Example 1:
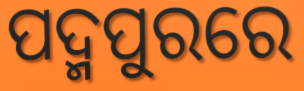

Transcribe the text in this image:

ପଦ୍ମପୁରରେ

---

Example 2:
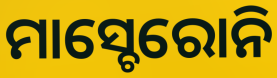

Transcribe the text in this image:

ମାସ୍ଚେରୋନି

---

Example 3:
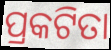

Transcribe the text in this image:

ପ୍ରକଟିତା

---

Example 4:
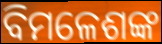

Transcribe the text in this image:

ବିମଳେଶଙ୍କ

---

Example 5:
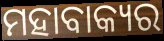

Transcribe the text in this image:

ମହାବାକ୍ୟର